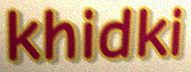
khidki